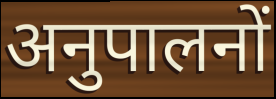
अनुपालनों